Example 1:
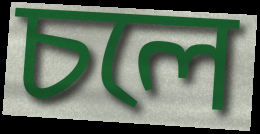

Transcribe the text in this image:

চলে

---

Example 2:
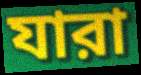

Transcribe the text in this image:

যারা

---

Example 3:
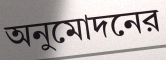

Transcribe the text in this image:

অনুমোদনের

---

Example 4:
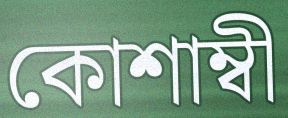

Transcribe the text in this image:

কোশাম্বী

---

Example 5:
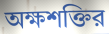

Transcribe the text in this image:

অক্ষশক্তির